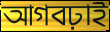
আগবঢ়াই